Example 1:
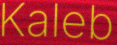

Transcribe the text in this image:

Kaleb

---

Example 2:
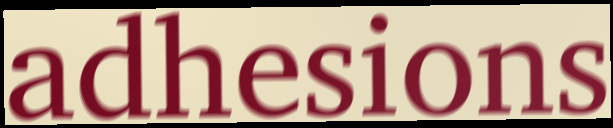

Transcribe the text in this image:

adhesions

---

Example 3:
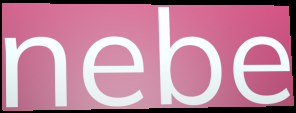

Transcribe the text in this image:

nebe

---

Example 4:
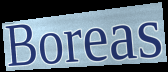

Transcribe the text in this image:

Boreas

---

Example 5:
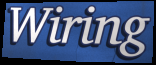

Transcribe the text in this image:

Wiring